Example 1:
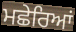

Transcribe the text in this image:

ਮਛੇਰਿਆਂ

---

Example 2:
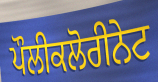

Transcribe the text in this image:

ਪੌਲੀਕਲੋਰੀਨੇਟ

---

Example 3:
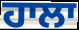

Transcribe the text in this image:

ਹਾਲਾ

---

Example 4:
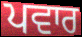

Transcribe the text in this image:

ਪਵਾਰ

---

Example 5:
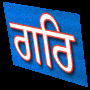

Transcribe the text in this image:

ਗਰਿ